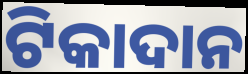
ଟିକାଦାନ